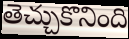
తెచ్చుకొనింది